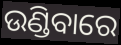
ଉଣ୍ଡିବାରେ